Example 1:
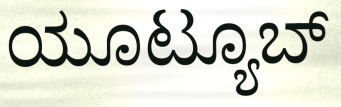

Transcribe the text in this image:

ಯೂಟ್ಯೂಬ್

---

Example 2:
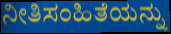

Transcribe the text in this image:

ನೀತಿಸಂಹಿತೆಯನ್ನು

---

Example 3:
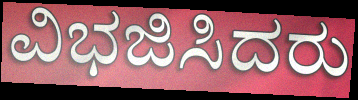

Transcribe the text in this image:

ವಿಭಜಿಸಿದರು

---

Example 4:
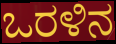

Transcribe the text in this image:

ಒರಳಿನ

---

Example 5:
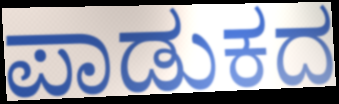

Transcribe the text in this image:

ಪಾಡುಕದ